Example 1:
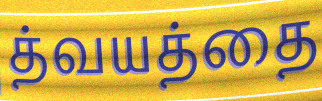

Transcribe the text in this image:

த்வயத்தை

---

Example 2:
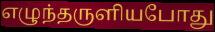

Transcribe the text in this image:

எழுந்தருளியபோது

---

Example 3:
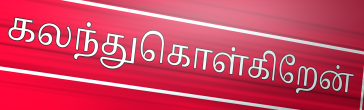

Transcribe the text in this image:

கலந்துகொள்கிறேன்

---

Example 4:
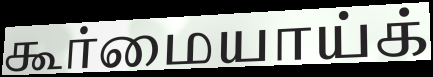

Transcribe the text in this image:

கூர்மையாய்க்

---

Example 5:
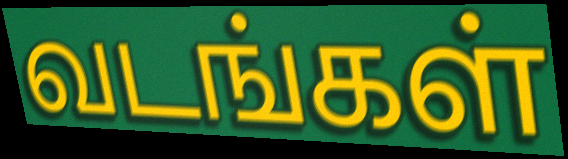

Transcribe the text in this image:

வடங்கள்